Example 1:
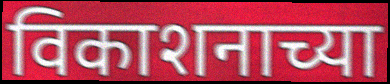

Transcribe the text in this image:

विकाशनाच्या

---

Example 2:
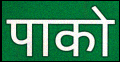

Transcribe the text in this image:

पाको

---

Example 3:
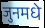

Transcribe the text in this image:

जुनमधे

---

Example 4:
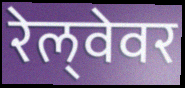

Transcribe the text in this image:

रेल्वेवर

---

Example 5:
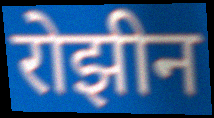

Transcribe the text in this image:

रोझीन